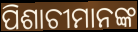
ପିଶାଚୀମାନଙ୍କ